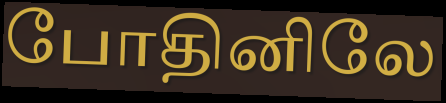
போதினிலே